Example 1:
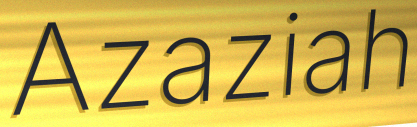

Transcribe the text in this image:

Azaziah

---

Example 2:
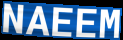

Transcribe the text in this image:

NAEEM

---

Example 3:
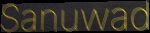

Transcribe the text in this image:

Sanuwad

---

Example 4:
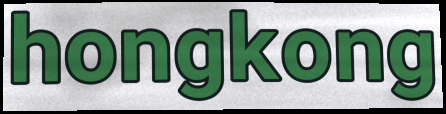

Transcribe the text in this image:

hongkong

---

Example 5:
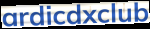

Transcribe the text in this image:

ardicdxclub